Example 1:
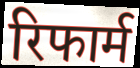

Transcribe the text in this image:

रिफार्म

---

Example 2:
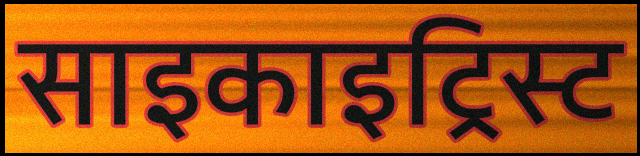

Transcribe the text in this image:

साइकाइट्रिस्ट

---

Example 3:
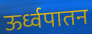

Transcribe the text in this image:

ऊर्ध्वपातन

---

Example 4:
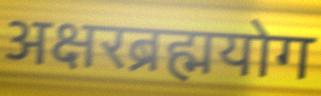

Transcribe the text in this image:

अक्षरब्रह्मयोग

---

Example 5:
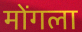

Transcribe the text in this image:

मोंगला